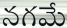
నగమే